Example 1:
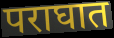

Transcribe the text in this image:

पराघात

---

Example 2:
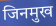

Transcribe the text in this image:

जिनमुख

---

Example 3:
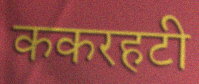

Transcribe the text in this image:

ककरहटी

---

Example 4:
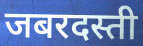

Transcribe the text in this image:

जबरदस्ती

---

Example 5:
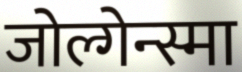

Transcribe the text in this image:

जोल्गेन्स्मा